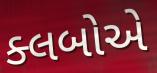
ક્લબોએ